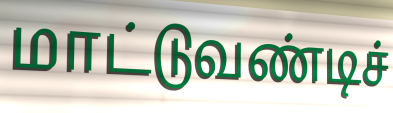
மாட்டுவண்டிச்